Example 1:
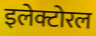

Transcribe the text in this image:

इलेक्टोरल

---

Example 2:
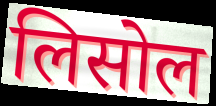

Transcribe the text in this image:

लिसोल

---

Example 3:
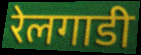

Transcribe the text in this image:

रेलगाडी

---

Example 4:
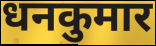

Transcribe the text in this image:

धनकुमार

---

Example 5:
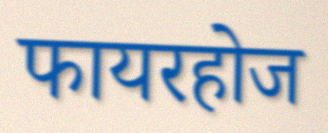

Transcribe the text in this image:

फायरहोज